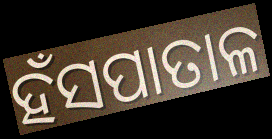
ହଁସପାତାଳ